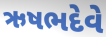
ઋષભદેવે